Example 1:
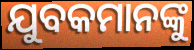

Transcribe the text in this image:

ଯୁବକମାନଙ୍କୁ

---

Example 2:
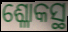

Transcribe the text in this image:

ଶ୍ଳୋକସ୍ଥ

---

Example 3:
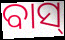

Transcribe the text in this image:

ବାସ୍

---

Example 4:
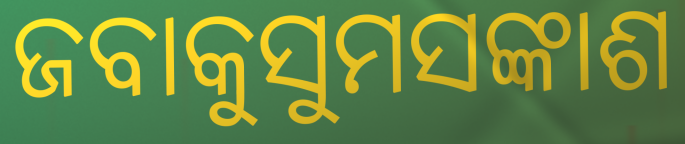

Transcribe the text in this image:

ଜବାକୁସୁମସଙ୍କାଶ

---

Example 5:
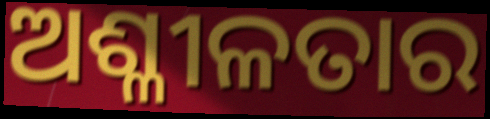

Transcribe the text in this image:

ଅଶ୍ଳୀଳତାର